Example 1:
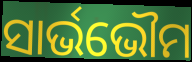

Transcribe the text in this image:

ସାର୍ଭଭୌମ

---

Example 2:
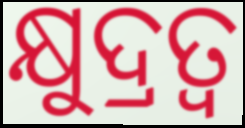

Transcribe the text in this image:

କ୍ଷୁଦ୍ରତ୍ୱ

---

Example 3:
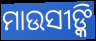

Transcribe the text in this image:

ମାଉସୀଙ୍କି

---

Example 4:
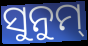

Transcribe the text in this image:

ସୁନୁମ୍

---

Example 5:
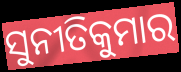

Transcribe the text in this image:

ସୁନୀତିକୁମାର